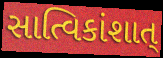
સાત્વિકાંશાત્